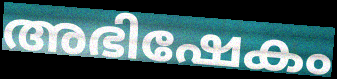
അഭിഷേകം